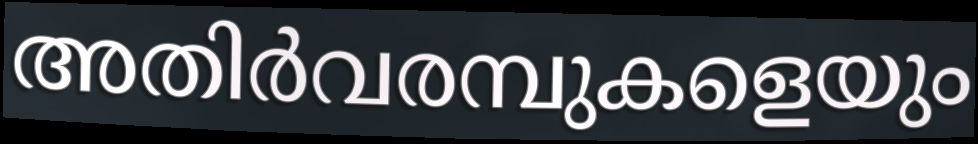
അതിർവരമ്പുകളെയും